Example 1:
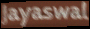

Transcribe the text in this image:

Jayaswal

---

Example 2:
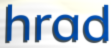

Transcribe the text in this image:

hrad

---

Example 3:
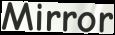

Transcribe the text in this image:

Mirror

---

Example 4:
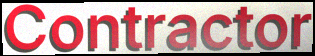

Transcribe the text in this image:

Contractor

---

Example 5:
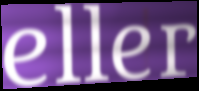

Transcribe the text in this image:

eller